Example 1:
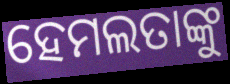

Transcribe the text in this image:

ହେମଲତାଙ୍କୁ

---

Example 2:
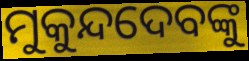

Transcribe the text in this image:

ମୁକୁନ୍ଦଦେବଙ୍କୁ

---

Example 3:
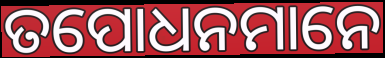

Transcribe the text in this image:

ତପୋଧନମାନେ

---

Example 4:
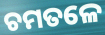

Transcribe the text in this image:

ଚମତଳେ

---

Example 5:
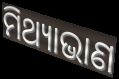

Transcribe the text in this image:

ମିଥ୍ୟାଭାଣ